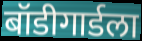
बॉडीगार्डला